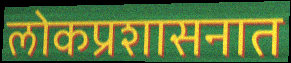
लोकप्रशासनात